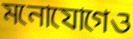
মনোযোগেও